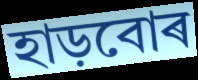
হাড়বোৰ